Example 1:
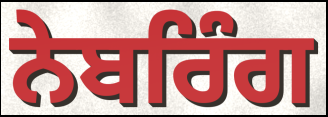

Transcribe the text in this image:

ਨੇਬਰਿੰਗ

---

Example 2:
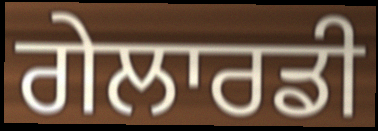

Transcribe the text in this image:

ਗੇਲਾਰਡੀ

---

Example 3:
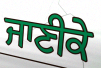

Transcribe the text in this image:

ਜਾਣੀਕੇ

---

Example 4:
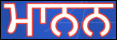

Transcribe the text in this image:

ਮਾਨਨ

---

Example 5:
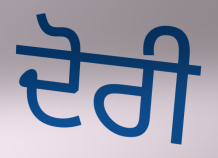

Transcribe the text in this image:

ਦੋਰੀ